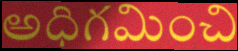
అధిగమించి